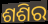
ଶଶିର